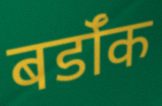
बर्डॉक